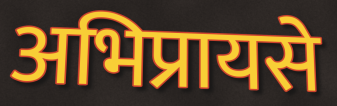
अभिप्रायसे